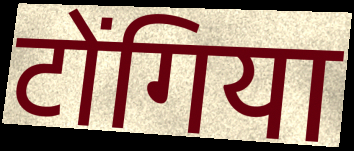
टोंगिया